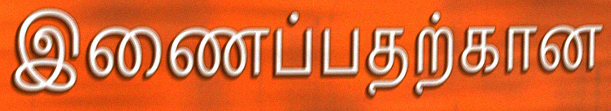
இணைப்பதற்கான